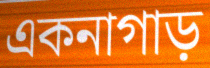
একনাগাড়